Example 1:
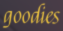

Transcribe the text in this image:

goodies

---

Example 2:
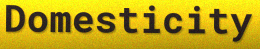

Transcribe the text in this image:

Domesticity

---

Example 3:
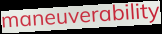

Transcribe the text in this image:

maneuverability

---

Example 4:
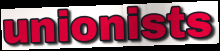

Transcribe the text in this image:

unionists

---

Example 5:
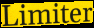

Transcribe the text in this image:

Limiter